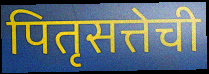
पितृसत्तेची